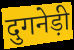
दुगनेड़ी